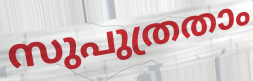
സുപുത്രതാം